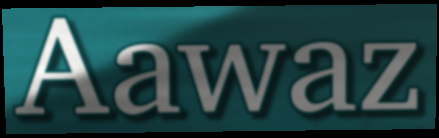
Aawaz